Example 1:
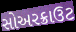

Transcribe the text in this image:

સોઅરક્રાઉટ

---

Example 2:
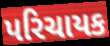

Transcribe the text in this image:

પરિચાયક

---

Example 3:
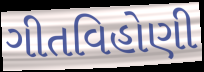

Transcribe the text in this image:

ગીતવિહોણી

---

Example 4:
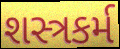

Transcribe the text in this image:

શસ્ત્રકર્મ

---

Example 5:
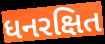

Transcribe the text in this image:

ધનરક્ષિત